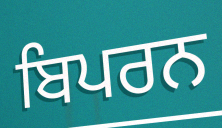
ਬਿਪਰਨ